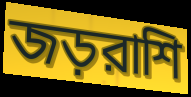
জড়রাশি